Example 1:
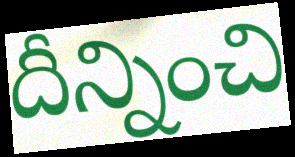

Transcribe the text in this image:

దీన్నించి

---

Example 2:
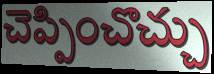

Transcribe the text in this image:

చెప్పించొచ్చు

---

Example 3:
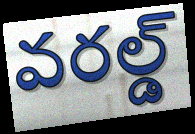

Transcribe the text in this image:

వరల్డ్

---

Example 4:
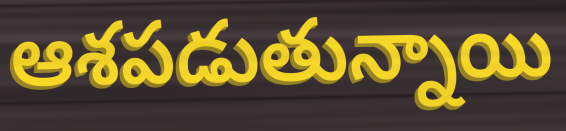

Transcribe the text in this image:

ఆశపడుతున్నాయి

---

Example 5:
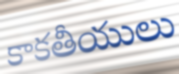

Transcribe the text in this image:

కాకతీయులు